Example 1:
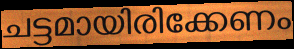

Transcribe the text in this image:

ചട്ടമായിരിക്കേണം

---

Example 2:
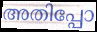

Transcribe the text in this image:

അതിപ്പോ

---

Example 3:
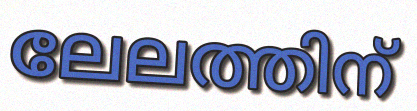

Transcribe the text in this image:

ലേലത്തിന്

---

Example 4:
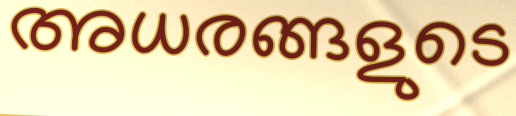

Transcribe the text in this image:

അധരങ്ങളുടെ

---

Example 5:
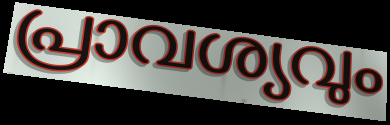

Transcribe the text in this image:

പ്രാവശ്യവും